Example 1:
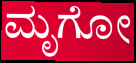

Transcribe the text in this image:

ಮೃಗೋ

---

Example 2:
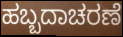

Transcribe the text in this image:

ಹಬ್ಬದಾಚರಣೆ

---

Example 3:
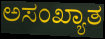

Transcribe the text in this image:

ಅಸಂಖ್ಯಾತ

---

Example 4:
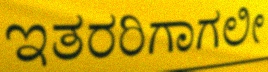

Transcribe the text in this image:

ಇತರರಿಗಾಗಲೀ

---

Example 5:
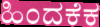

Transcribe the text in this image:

ಹಿಂದಕೆಕ